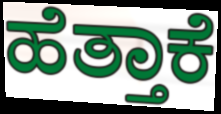
ಹೆತ್ತಾಕೆ